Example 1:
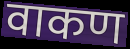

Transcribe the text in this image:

वाकण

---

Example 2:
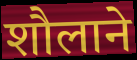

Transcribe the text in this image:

शौलाने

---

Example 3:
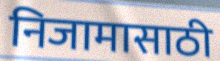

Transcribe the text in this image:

निजामासाठी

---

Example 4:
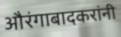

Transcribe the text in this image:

औरंगाबादकरांनी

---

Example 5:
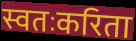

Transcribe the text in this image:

स्वतःकरिता